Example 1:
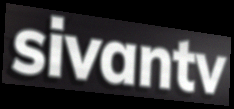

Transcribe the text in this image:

sivantv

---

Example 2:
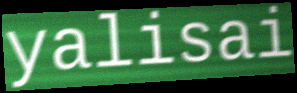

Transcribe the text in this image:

yalisai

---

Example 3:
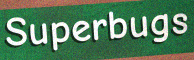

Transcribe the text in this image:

Superbugs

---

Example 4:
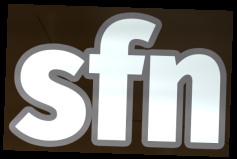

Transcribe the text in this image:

sfn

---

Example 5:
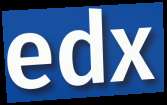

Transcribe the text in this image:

edx